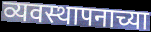
व्यवस्थापनाच्या